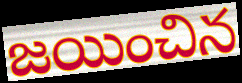
జయించిన